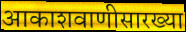
आकाशवाणीसारख्या